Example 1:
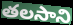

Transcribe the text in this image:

తలసాని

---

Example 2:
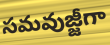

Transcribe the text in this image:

సమవుజ్జీగా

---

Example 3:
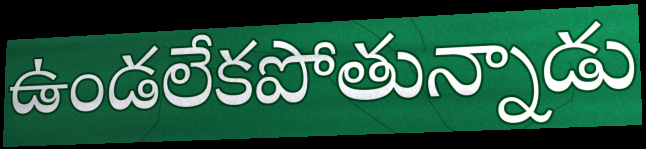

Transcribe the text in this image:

ఉండలేకపోతున్నాడు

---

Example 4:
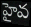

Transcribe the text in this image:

హైవ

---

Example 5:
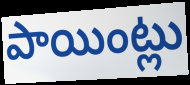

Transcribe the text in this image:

పాయింట్లు